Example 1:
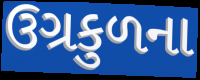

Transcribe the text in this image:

ઉગ્રકુળના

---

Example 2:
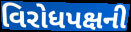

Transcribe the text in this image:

વિરોધપક્ષની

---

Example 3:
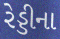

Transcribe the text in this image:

રેડ્ડીના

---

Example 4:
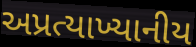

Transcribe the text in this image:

અપ્રત્યાખ્યાનીય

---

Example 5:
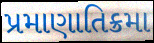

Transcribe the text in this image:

પ્રમાણાતિક્રમા